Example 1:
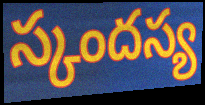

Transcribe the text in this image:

స్కందస్య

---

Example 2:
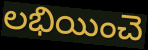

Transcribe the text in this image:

లభియించె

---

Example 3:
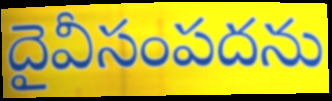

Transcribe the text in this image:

దైవీసంపదను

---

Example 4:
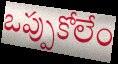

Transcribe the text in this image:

ఒప్పుకోలేం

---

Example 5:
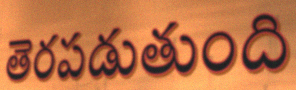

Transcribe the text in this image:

తెరపడుతుంది